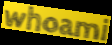
whoami